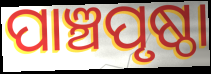
ପାଞ୍ଚପୃଷ୍ଠା